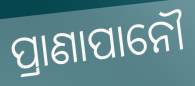
ପ୍ରାଣାପାନୌ